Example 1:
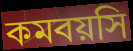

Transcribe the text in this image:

কমবয়সি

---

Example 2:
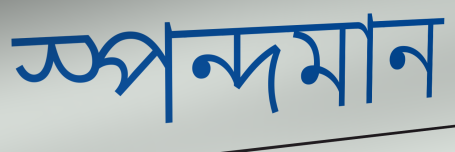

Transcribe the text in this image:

স্পন্দমান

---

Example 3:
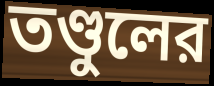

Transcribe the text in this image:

তণ্ডুলের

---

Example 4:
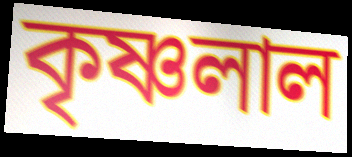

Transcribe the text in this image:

কৃষ্ণলাল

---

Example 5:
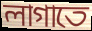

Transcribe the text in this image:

লাগাতে